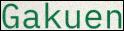
Gakuen